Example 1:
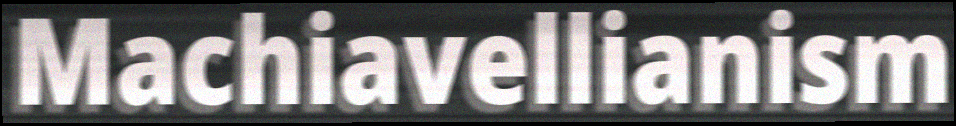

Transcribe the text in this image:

Machiavellianism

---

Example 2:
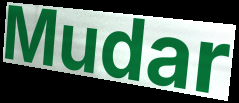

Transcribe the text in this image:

Mudar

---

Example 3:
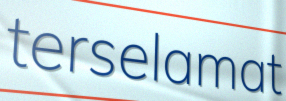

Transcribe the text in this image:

terselamat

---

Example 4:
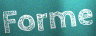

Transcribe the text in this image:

Forme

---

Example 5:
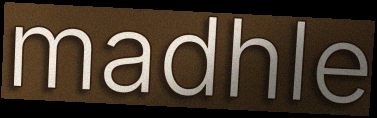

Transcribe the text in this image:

madhle